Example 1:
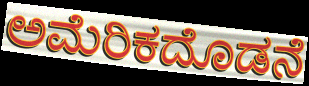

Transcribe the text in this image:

ಅಮೆರಿಕದೊಡನೆ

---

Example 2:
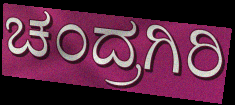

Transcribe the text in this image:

ಚಂದ್ರಗಿರಿ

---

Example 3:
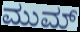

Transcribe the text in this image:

ಮುಮ್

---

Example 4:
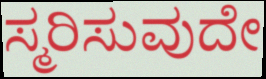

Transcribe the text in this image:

ಸ್ಮರಿಸುವುದೇ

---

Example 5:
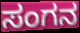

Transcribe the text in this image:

ಸಂಗನ